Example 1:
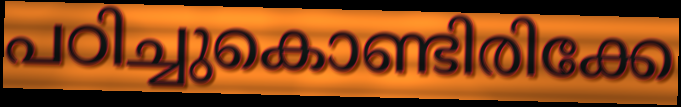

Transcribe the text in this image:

പഠിച്ചുകൊണ്ടിരിക്കേ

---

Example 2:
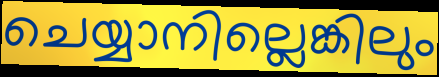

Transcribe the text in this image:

ചെയ്യാനില്ലെങ്കിലും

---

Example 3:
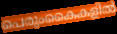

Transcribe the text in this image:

പെരുംകൈകളിൽ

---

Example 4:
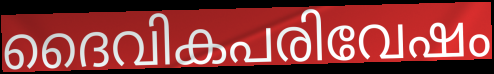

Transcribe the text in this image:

ദൈവികപരിവേഷം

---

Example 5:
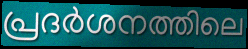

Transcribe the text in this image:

പ്രദർശനത്തിലെ